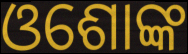
ଓଶୋଙ୍କ